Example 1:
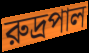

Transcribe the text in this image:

রুদ্রপাল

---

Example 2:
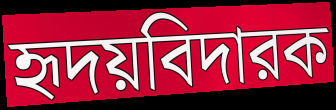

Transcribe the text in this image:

হৃদয়বিদারক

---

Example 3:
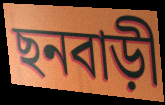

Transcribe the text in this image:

ছনবাড়ী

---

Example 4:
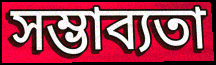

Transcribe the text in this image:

সম্ভাব্যতা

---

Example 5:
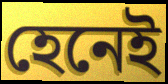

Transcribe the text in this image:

হেনেই